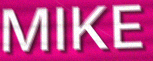
MIKE